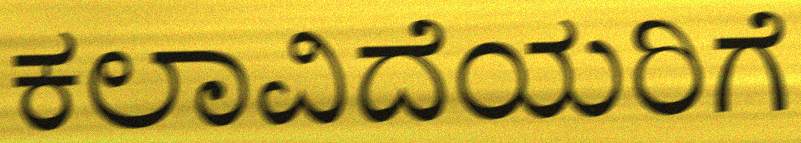
ಕಲಾವಿದೆಯರಿಗೆ